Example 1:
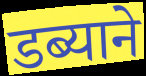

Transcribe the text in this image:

डब्याने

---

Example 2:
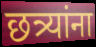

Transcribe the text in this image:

छत्र्यांना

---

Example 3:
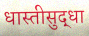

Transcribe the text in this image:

धास्तीसुद्धा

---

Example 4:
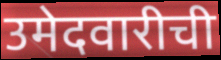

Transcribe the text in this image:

उमेदवारीची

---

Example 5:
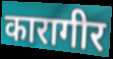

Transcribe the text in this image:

कारागीर